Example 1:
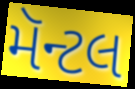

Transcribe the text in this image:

મૅન્ટલ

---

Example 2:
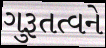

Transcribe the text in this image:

ગુરૂતત્વને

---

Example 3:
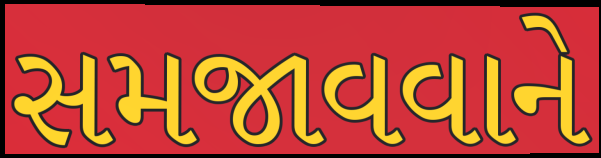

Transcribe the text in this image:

સમજાવવાને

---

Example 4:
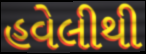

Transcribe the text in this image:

હવેલીથી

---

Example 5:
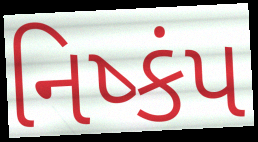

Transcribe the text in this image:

નિષ્કંપ